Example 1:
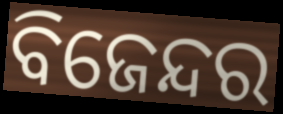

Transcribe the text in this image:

ବିଜେନ୍ଦର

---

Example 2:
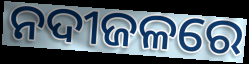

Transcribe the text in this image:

ନଦୀଜଳରେ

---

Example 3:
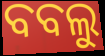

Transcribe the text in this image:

ବବଲୁ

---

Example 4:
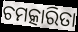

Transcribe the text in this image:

ଚମତ୍କାରିତା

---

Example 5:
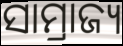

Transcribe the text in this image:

ସାମ୍ରାଜ୍ଯ